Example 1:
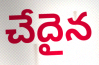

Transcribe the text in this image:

చేదైన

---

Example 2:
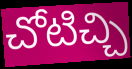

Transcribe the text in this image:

చోటిచ్చి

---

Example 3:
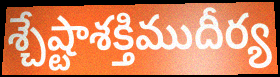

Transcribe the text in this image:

శ్చేష్టాశక్తిముదీర్య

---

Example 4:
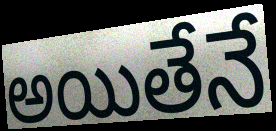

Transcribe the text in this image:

అయితేనే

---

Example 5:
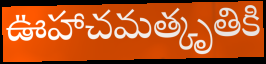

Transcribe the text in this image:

ఊహాచమత్కృతికి